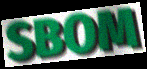
SBOM